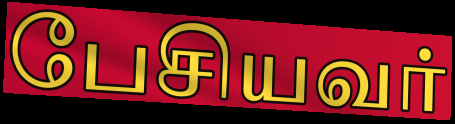
பேசியவர்